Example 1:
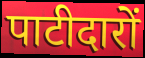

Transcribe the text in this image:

पाटीदारों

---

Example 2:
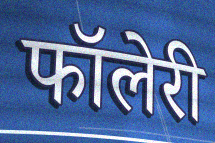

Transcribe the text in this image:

फॉलेरी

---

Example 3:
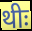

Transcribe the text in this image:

थीः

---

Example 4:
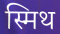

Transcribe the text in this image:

स्मिथ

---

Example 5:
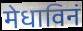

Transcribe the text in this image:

मेधाविनं